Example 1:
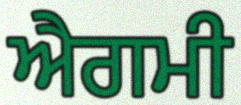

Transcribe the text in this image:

ਐਗਮੀ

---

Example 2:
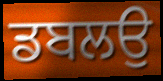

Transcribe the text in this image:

ਡਬਲਉ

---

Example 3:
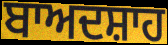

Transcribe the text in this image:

ਬਾਅਦਸ਼ਾਹ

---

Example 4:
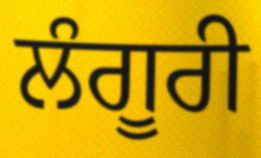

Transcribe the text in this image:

ਲੰਗੂਰੀ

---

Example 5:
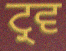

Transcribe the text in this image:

ਟ੍ਰਵ